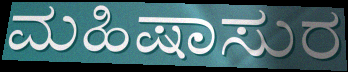
ಮಹಿಷಾಸುರ